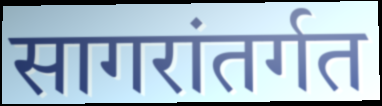
सागरांतर्गत